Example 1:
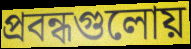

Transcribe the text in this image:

প্রবন্ধগুলোয়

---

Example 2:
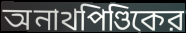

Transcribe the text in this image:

অনাথপিণ্ডিকের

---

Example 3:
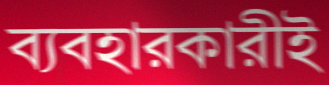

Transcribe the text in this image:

ব্যবহারকারীই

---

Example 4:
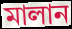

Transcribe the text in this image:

মালান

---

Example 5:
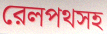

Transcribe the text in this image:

রেলপথসহ